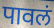
पावलं